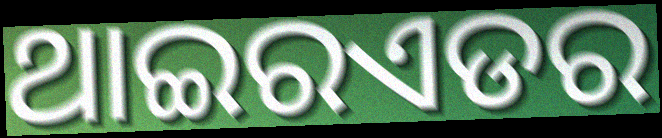
ଥାଇରଏଡର